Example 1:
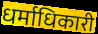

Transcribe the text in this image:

धर्माधिकारी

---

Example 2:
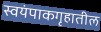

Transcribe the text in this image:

स्वयंपाकगृहातील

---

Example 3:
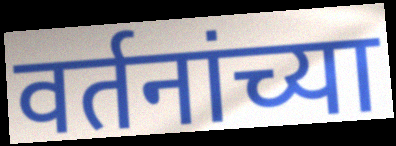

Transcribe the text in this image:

वर्तनांच्या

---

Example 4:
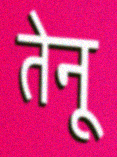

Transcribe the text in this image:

तेनू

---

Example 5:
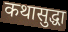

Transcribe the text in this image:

कथासुद्धा